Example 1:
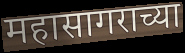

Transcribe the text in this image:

महासागराच्या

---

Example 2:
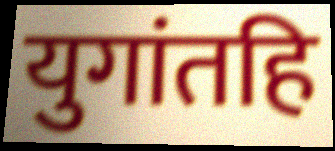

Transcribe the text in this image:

युगांतहि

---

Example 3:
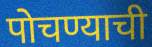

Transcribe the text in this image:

पोचण्याची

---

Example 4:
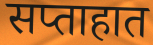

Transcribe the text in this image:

सप्ताहात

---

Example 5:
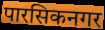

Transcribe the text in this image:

पारसिकनगर